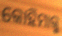
କୋହିମାକୁ